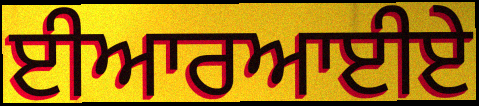
ਈਆਰਆਈਏ